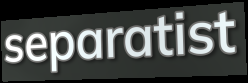
separatist